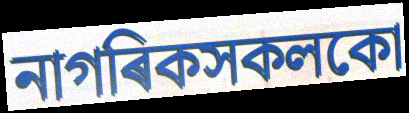
নাগৰিকসকলকো